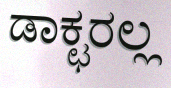
ಡಾಕ್ಟರಲ್ಲ